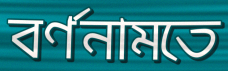
বর্ণনামতে